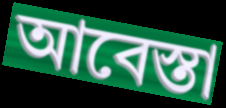
আবেস্তা